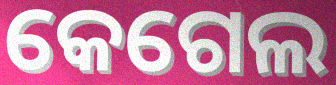
କେଗେଲ